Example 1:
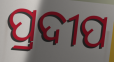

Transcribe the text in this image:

ପ୍ରଦୀପ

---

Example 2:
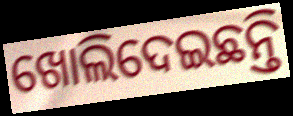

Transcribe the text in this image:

ଖୋଲିଦେଇଛନ୍ତି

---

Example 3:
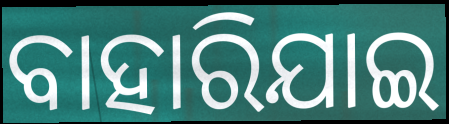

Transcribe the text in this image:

ବାହାରିଯାଇ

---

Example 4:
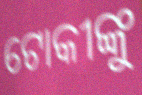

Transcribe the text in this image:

ଟୋକୀଙ୍କୁ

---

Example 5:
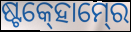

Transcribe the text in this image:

ଷ୍ଟକ୍‍ହୋମ୍‍ରେ